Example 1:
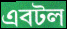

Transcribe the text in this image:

এবটল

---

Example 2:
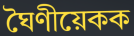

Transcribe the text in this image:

ঘৈণীয়েকক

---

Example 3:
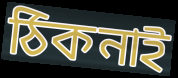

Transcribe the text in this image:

ঠিকনাই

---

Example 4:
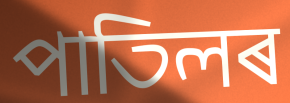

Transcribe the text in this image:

পাতিলৰ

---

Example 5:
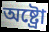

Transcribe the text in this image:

অষ্ট্ৰো